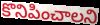
కొనిపించాలని